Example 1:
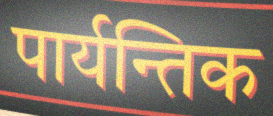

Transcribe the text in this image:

पार्यन्तिक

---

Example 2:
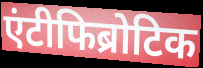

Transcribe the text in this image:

एंटीफिब्रोटिक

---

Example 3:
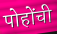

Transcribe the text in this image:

पोहोंची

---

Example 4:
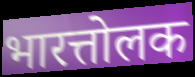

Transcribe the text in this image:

भारत्तोलक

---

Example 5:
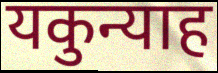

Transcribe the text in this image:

यकुन्याह